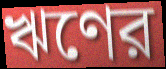
ঋণের